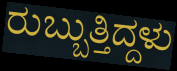
ರುಬ್ಬುತ್ತಿದ್ದಳು